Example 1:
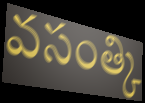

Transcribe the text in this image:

వసంత్కి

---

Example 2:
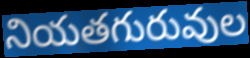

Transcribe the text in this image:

నియతగురువుల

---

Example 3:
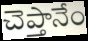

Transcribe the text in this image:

చెప్తానేం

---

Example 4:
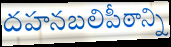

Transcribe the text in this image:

దహనబలిపీఠాన్ని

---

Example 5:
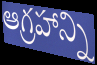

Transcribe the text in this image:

ఆగ్రహాన్ని